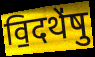
वि॒दथे॑षु